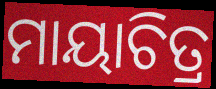
ମାୟାଚିତ୍ର